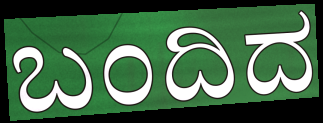
ಬಂದಿದ